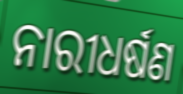
ନାରୀଧର୍ଷଣ